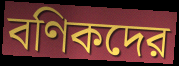
বণিকদের